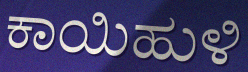
ಕಾಯಿಹುಳಿ